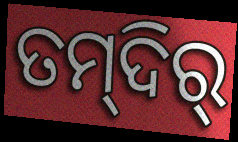
ତମ୍‍ଦିର୍